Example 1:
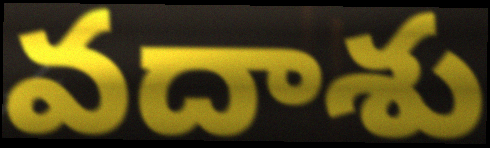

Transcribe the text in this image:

వదాశు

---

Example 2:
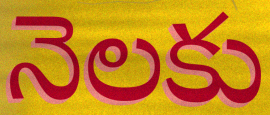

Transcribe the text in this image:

నెలకు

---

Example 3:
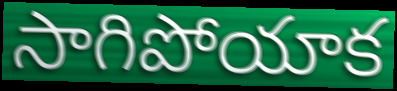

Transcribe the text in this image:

సాగిపోయాక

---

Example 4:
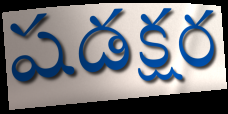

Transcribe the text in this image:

షడక్షర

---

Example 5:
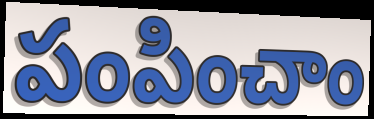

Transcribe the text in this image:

పంపించాం